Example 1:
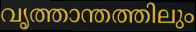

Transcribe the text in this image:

വൃത്താന്തത്തിലും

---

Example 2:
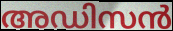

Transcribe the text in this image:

അഡിസൻ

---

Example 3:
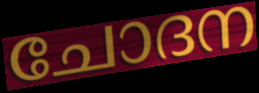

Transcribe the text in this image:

ചോദന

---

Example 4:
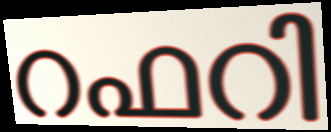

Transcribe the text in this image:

റഫറി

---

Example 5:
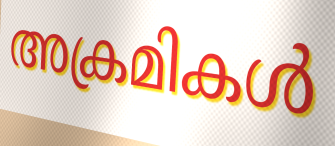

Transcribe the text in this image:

അക്രമികൾ